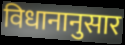
विधानानुसार